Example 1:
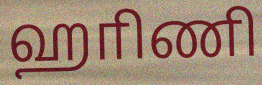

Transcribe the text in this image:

ஹரிணி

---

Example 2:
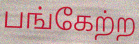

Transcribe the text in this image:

பங்கேற்ற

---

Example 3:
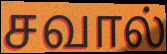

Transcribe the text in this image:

சவால்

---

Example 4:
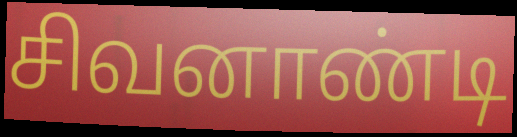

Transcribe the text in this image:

சிவனாண்டி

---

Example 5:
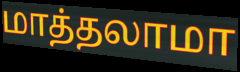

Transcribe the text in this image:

மாத்தலாமா